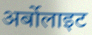
अर्बोलाइट